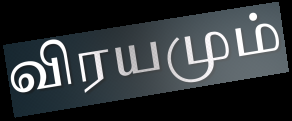
விரயமும்